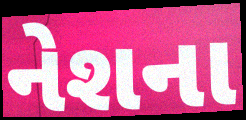
નેશના